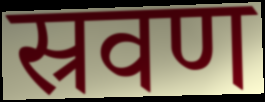
स्रवण